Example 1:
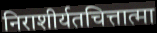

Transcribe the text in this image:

निराशीर्यतचित्तात्मा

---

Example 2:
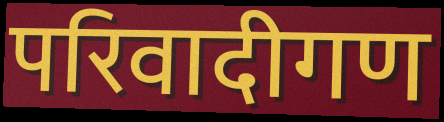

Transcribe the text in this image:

परिवादीगण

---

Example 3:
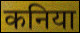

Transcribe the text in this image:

कनिया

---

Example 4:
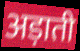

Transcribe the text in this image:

अड़ाती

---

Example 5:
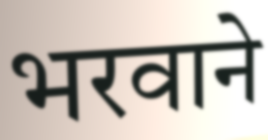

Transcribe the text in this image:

भरवाने